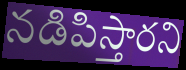
నడిపిస్తారని